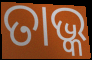
ତାଭ୍କ